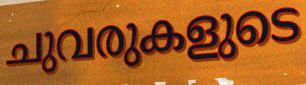
ചുവരുകളുടെ